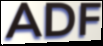
ADF